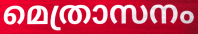
മെത്രാസനം